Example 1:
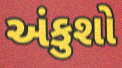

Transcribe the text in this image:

અંકુશો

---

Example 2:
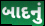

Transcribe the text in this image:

બાદનું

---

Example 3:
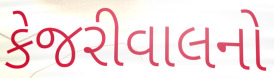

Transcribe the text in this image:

કેજરીવાલનો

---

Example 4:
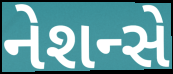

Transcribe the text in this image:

નેશન્સે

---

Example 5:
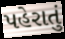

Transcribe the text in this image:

પહેરાતું